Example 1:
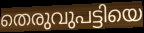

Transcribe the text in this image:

തെരുവുപട്ടിയെ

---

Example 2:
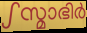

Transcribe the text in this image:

ഽസ്മാഭിർ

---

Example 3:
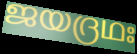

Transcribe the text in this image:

ജയദ്രഥഃ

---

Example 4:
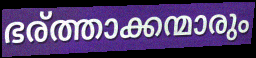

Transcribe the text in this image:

ഭര്ത്താക്കന്മാരും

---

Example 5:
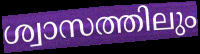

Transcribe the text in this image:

ശ്വാസത്തിലും